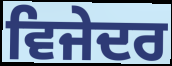
ਵਿਜੇਦਰ